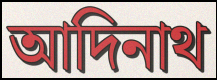
আদিনাথ